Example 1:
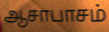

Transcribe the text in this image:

ஆசாபாசம்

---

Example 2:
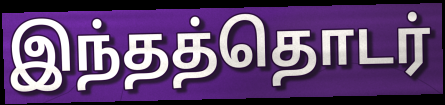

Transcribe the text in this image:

இந்தத்தொடர்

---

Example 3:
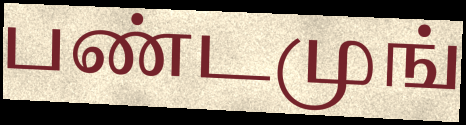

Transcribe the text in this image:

பண்டமுங்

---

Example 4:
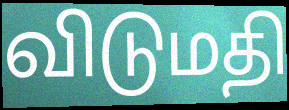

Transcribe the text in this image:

விடுமதி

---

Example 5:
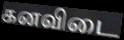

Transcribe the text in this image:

கனவிடை